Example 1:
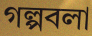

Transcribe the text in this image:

গল্পবলা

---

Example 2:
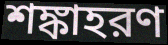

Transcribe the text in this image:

শঙ্কাহরণ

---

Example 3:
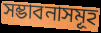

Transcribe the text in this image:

সম্ভাবনাসমূহ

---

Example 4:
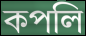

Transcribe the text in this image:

কপলি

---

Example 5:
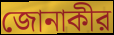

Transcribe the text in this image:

জোনাকীর